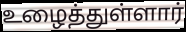
உழைத்துள்ளார்